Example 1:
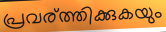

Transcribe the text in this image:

പ്രവര്ത്തിക്കുകയും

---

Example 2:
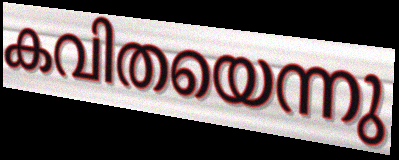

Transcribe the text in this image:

കവിതയെന്നു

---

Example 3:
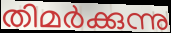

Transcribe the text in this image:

തിമർക്കുന്നു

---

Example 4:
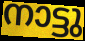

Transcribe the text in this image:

നാട്ടു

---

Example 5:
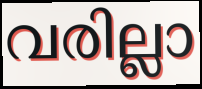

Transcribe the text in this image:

വരില്ലാ